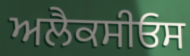
ਅਲੈਕਸੀਓਸ